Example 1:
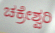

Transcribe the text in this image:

ಚಕ್ರೇಶ್ವರಿ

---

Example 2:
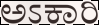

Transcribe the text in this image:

ಅಽಕಾರಿ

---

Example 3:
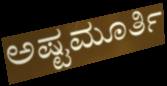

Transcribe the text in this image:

ಅಷ್ಟಮೂರ್ತಿ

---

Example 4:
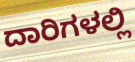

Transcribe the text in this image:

ದಾರಿಗಳಲ್ಲಿ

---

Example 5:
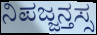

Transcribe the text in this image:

ನಿಪಜ್ಜನ್ತಸ್ಸ